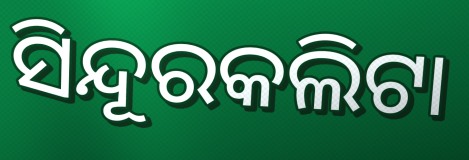
ସିନ୍ଦୂରକଲିଟା